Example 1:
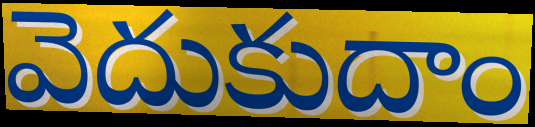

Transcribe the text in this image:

వెదుకుదాం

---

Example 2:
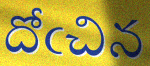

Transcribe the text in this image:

దోఁచిన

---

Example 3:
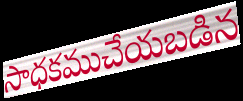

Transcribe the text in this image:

సాధకముచేయబడిన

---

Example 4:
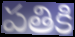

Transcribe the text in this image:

పతికి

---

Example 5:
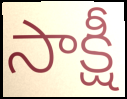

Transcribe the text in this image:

సాక్షీ